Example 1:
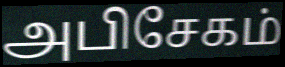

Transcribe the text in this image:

அபிசேகம்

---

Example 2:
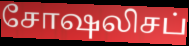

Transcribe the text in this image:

சோஷலிசப்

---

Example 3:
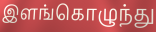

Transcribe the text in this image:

இளங்கொழுந்து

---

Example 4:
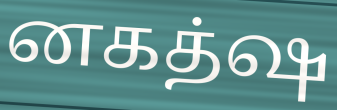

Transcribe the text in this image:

னகத்ஷ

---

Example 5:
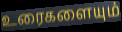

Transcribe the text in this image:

உரைகளையும்